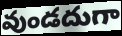
వుండదుగా